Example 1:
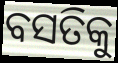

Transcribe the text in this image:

ବସତିକୁ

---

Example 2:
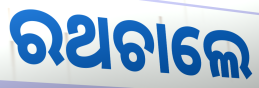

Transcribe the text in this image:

ରଥଚାଲେ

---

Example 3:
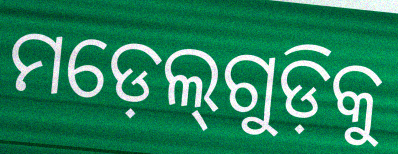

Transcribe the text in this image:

ମଡ଼େଲ୍‌ଗୁଡ଼ିକୁ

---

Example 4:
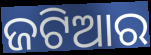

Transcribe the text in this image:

ଜଟିଆର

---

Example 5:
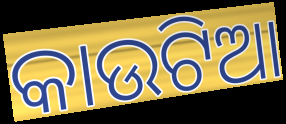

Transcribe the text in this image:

କାଉଟିଆ